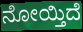
ನೋಯ್ತಿದೆ